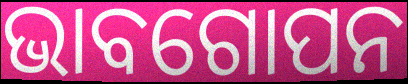
ଭାବଗୋପନ